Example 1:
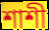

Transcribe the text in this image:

শাশী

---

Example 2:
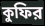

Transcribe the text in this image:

কুফির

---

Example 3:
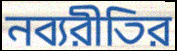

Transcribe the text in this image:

নব্যরীতির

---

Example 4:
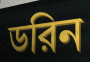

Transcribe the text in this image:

ডরিন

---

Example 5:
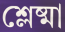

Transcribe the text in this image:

শ্লেষ্মা